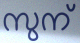
സുന്